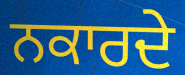
ਨਕਾਰਦੇ